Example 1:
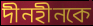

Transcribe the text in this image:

দীনহীনকে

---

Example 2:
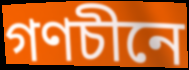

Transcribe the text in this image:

গণচীনে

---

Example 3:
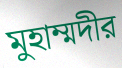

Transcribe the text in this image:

মুহাম্মদীর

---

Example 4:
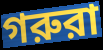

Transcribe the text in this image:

গরুরা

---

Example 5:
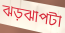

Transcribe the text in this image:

ঝড়ঝাপটা